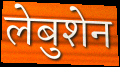
लेबुशेन